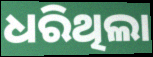
ଧରିଥିଲା